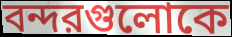
বন্দরগুলোকে